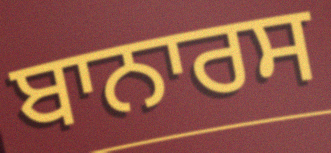
ਬਾਨਾਰਸ